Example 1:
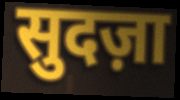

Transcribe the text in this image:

सुदज़ा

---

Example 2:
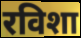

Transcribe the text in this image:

रविशा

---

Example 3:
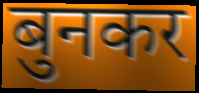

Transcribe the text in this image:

बुनकर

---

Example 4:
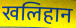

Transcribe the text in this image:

खलिहान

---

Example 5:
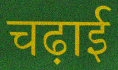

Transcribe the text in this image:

चढ़ाई